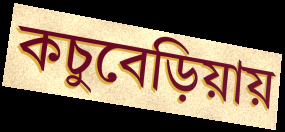
কচুবেড়িয়ায়